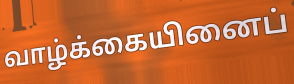
வாழ்க்கையினைப்